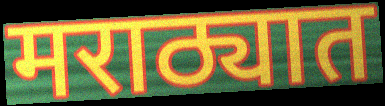
मराठ्यात